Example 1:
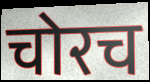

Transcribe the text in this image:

चोरच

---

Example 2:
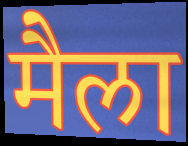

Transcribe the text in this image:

मैला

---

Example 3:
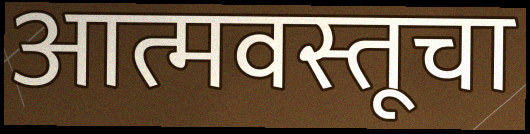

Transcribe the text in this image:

आत्मवस्तूचा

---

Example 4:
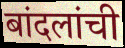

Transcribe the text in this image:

बांदलांची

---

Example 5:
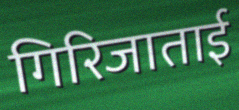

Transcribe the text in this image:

गिरिजाताई